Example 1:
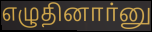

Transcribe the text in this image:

எழுதினார்னு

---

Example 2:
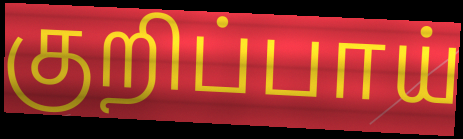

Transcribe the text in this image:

குறிப்பாய்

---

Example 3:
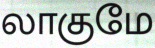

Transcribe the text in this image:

லாகுமே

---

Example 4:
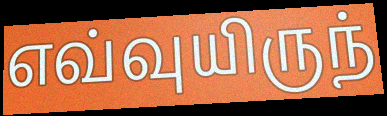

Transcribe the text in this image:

எவ்வுயிருந்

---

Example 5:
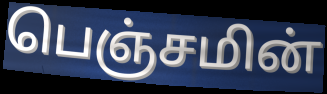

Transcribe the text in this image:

பெஞ்சமின்